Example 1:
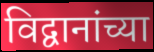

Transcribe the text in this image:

विद्वानांच्या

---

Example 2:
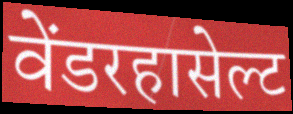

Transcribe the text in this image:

वेंडरहासेल्ट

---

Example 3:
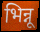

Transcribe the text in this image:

भिन्नू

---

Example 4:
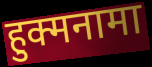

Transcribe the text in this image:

हुक्मनामा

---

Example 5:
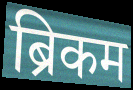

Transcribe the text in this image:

ब्रिकम